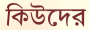
কিউদের